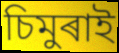
চিমুৰাই